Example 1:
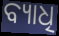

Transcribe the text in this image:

ବ୍ୟାଧି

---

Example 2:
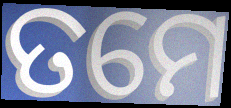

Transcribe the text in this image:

ତମେ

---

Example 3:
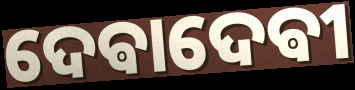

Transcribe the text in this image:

ଦେଵାଦେଵୀ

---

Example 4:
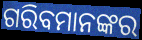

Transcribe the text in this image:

ଗରିବମାନଙ୍କର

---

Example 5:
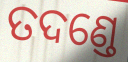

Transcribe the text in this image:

ତଦଣ୍ଡେ